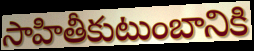
సాహితీకుటుంబానికి